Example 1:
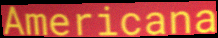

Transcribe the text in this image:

Americana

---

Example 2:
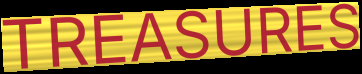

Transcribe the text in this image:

TREASURES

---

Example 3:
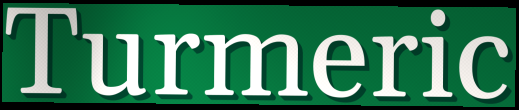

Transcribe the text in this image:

Turmeric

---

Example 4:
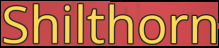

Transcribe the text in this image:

Shilthorn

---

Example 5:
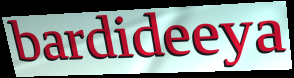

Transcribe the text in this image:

bardideeya